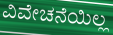
ವಿವೇಚನೆಯಿಲ್ಲ